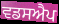
ਵਡਸਐਪ